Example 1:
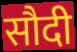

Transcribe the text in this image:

सौदी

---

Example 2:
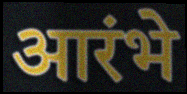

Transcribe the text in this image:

आरंभे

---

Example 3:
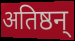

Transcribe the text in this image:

अतिष्ठन्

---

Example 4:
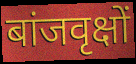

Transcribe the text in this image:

बांजवृक्षों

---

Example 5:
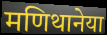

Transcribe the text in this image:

मणिथानेया